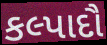
કલ્પાદૌ